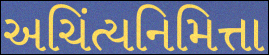
અચિંત્યનિમિત્તા